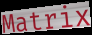
Matrix